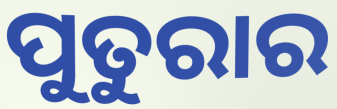
ପୁତୁରାର